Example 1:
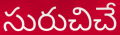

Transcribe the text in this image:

సురుచిచే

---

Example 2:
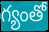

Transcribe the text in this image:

గ్యంతో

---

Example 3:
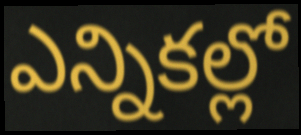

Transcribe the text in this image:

ఎన్నికల్లో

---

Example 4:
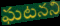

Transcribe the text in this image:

ఘటనని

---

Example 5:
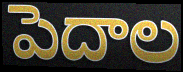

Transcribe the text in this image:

పెదాల